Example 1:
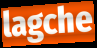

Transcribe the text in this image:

lagche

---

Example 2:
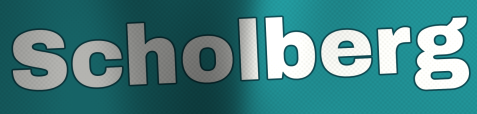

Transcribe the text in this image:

Scholberg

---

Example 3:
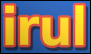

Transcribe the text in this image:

irul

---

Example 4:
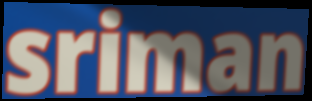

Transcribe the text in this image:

sriman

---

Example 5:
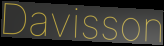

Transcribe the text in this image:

Davisson